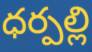
ధర్పల్లి